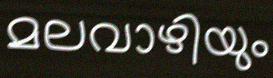
മലവാഴിയും